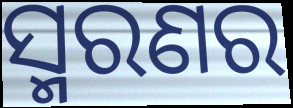
ସ୍ମରଣର